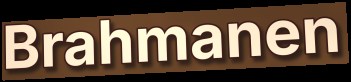
Brahmanen